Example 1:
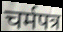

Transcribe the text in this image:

चर्मपत्र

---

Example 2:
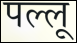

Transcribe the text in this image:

पल्लू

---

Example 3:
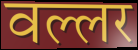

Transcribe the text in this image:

वल्लर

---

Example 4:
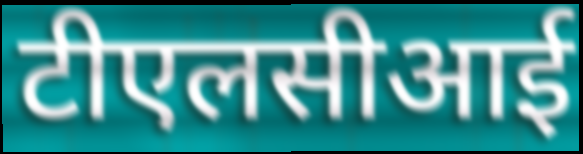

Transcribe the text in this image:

टीएलसीआई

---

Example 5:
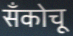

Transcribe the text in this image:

सँकोचू